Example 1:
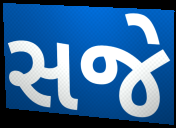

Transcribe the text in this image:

સજે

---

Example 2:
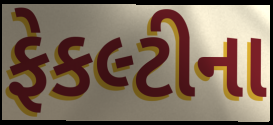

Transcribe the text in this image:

ફેકલ્ટીના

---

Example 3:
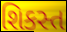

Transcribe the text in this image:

શિકસ્ત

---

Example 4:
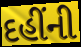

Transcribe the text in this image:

દહીંની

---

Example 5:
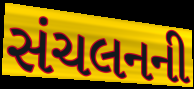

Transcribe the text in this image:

સંચલનની